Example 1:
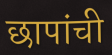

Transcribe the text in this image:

छापांची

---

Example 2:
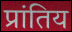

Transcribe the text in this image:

प्रांतिय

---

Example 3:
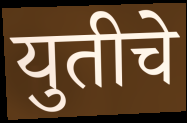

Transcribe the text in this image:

युतीचे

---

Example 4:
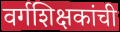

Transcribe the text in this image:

वर्गशिक्षकांची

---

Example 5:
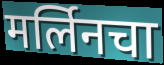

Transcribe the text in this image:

मर्लिनचा